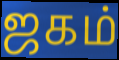
ஜகம்